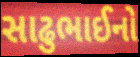
સાઢુભાઈનો